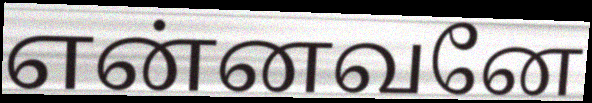
என்னவனே